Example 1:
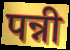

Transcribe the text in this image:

पन्नी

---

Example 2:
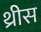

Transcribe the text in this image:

थ्रीस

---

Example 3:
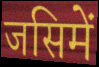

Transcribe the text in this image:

जसिमें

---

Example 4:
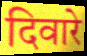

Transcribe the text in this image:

दिवारे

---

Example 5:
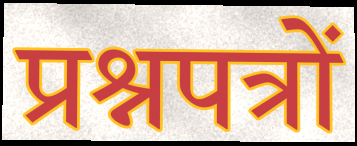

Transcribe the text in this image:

प्रश्नपत्रों